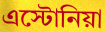
এস্টোনিয়া